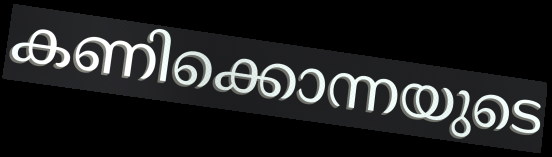
കണിക്കൊന്നയുടെ